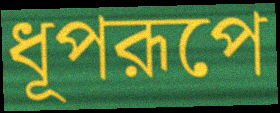
ধূপরূপে